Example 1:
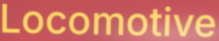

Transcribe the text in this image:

Locomotive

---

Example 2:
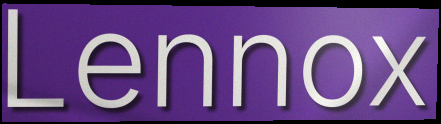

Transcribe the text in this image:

Lennox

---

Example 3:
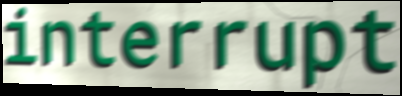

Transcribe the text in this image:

interrupt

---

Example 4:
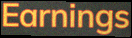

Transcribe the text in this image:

Earnings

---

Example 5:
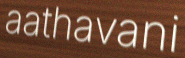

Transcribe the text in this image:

aathavani